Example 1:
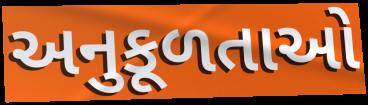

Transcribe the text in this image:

અનુકૂળતાઓ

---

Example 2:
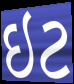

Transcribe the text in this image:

ઇટ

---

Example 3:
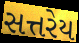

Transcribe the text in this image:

સત્તરેય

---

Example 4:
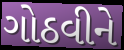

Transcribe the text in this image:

ગોઠવીને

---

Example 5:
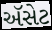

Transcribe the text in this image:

ઍસેટ